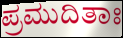
ಪ್ರಮುದಿತಾಃ